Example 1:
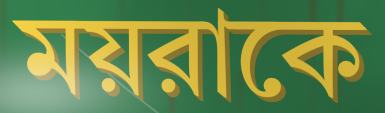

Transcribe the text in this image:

ময়রাকে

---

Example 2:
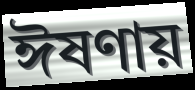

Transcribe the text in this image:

ঈষণায়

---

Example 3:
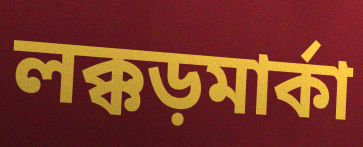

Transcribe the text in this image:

লক্কড়মার্কা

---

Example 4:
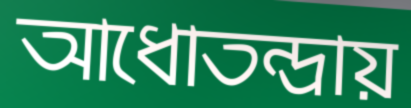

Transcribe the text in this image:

আধোতন্দ্রায়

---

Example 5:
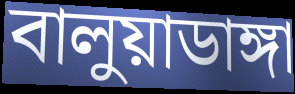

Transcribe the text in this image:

বালুয়াডাঙ্গা